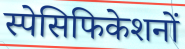
स्पेसिफिकेशनों